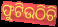
ଫୁଟିଉଠିଚି